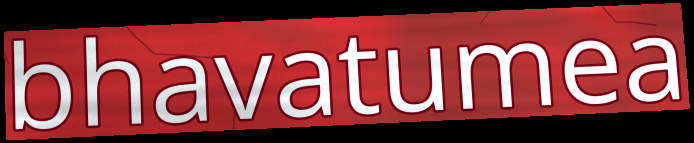
bhavatumea